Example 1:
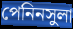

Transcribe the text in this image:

পেনিনসুলা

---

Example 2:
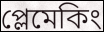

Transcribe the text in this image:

প্লেমেকিং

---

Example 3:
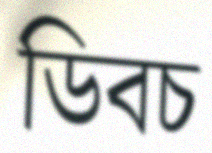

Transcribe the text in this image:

ডিবচ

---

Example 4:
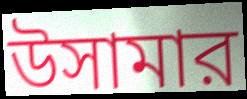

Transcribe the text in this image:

উসামার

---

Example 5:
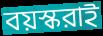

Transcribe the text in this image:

বয়স্করাই